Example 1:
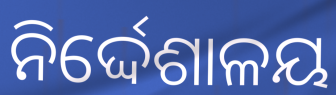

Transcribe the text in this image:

ନିର୍ଦ୍ଦେଶାଳୟ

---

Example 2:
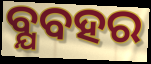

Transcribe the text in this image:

ବ୍ଯବହର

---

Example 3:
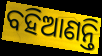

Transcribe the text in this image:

ବହିଆଣନ୍ତି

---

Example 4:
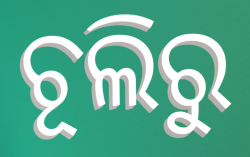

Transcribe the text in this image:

ଚୂଲିରୁ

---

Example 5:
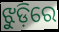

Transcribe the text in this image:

ଝୁଡ଼ିରେ